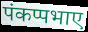
पंकप्पभाए